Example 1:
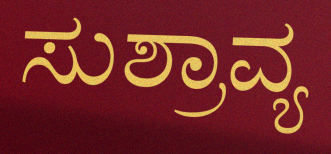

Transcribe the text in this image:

ಸುಶ್ರಾವ್ಯ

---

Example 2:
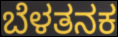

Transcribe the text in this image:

ಬೆಳತನಕ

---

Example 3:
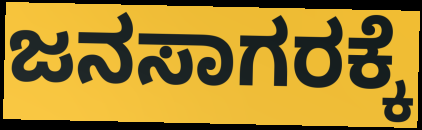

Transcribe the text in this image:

ಜನಸಾಗರಕ್ಕೆ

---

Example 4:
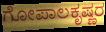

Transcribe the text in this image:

ಗೋಪಾಲಕೃಷ್ಣರ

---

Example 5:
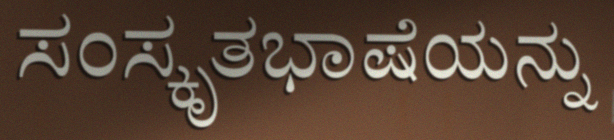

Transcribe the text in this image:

ಸಂಸ್ಕೃತಭಾಷೆಯನ್ನು